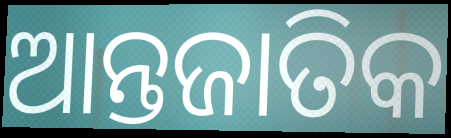
ଆନ୍ତଜାତିକ